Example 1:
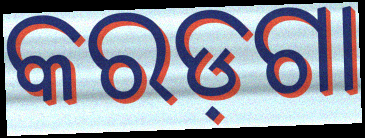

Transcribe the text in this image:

କରଡ଼ଗା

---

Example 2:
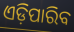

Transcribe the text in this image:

ଏଡ଼ିପାରିବ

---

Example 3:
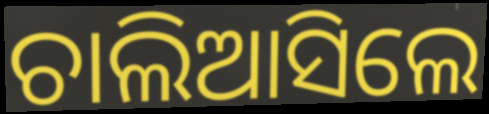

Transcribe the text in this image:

ଚାଲିଆସିଲେ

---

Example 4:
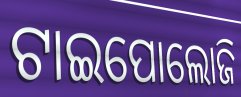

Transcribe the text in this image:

ଟାଇପୋଲୋଜି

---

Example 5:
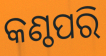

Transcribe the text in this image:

କଣ୍ଠପରି